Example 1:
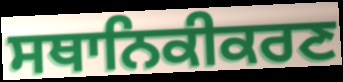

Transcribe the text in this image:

ਸਥਾਨਿਕੀਕਰਣ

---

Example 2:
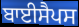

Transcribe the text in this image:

ਬਾਈਸੈਪਸ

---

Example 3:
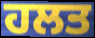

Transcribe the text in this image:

ਹਲਤ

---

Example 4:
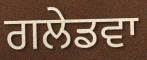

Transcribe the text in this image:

ਗਲੇਡਵਾ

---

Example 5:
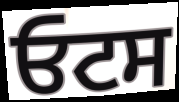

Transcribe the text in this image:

ਓਟਸ